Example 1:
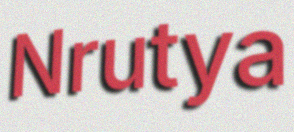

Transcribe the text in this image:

Nrutya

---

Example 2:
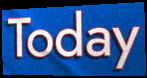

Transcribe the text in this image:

Today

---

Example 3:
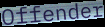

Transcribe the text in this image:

Offender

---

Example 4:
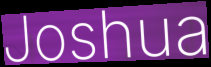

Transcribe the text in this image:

Joshua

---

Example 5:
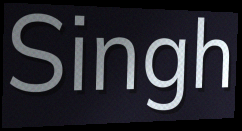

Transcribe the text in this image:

Singh